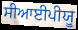
ਸੀਆਈਪੀਯੂ